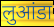
लुआंडा